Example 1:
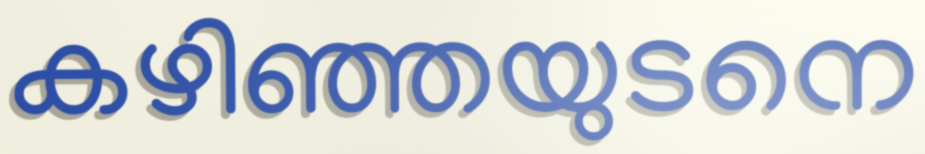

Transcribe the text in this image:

കഴിഞ്ഞയുടനെ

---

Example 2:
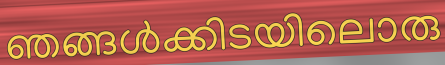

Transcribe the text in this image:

ഞങ്ങൾക്കിടയിലൊരു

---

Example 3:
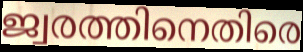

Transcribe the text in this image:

ജ്വരത്തിനെതിരെ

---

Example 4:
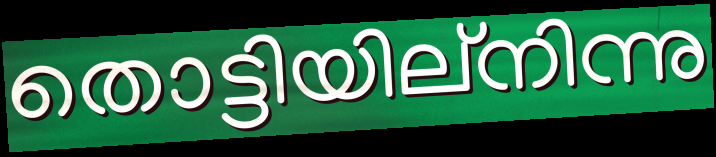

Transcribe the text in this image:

തൊട്ടിയില്നിന്നു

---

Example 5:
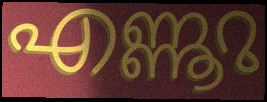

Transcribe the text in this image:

എണ്ണൂറു